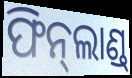
ଫିନ୍‌ଲାଣ୍ଡ୍